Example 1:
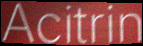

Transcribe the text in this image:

Acitrin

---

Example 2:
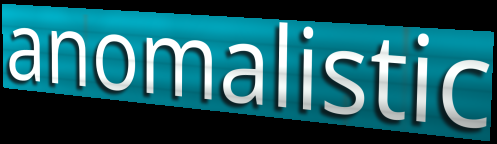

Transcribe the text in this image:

anomalistic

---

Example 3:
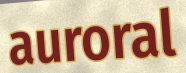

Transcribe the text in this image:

auroral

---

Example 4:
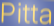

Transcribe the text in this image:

Pitta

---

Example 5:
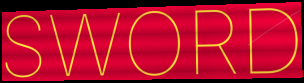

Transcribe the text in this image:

SWORD